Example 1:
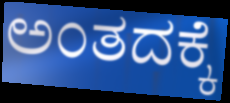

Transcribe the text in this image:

ಅಂತದಕ್ಕೆ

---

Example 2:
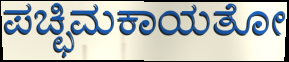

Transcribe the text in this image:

ಪಚ್ಛಿಮಕಾಯತೋ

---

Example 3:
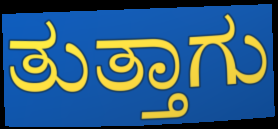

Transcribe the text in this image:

ತುತ್ತಾಗು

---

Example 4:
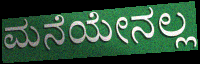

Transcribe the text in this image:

ಮನೆಯೇನಲ್ಲ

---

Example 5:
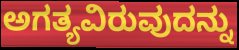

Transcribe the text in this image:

ಅಗತ್ಯವಿರುವುದನ್ನು